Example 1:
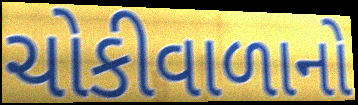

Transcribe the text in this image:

ચોકીવાળાનો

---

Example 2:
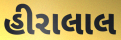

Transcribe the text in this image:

હીરાલાલ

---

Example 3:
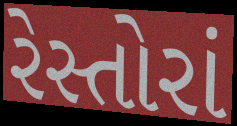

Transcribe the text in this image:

રેસ્તોરાં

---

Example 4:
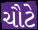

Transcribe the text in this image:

ચૌટે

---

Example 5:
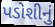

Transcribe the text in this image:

પડોશીનું